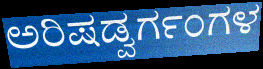
ಅರಿಷಡ್ವರ್ಗಂಗಳ